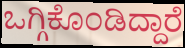
ಒಗ್ಗಿಕೊಂಡಿದ್ದಾರೆ